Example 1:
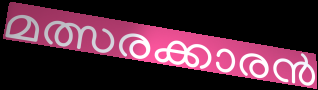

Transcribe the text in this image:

മത്സരക്കാരൻ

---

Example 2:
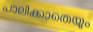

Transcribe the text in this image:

പാലിക്കാതെയും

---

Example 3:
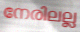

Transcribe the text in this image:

നേരിലല്ല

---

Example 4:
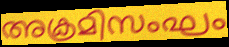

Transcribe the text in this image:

അക്രമിസംഘം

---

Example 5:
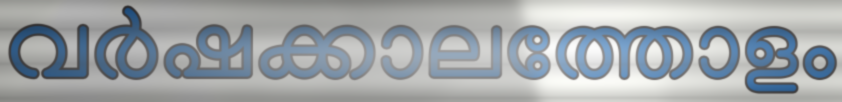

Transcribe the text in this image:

വർഷക്കാലത്തോളം